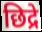
छिद्रे